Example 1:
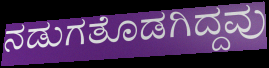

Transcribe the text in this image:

ನಡುಗತೊಡಗಿದ್ದವು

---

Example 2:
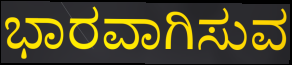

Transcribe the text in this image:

ಭಾರವಾಗಿಸುವ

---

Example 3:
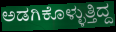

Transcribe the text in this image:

ಅಡಗಿಕೊಳ್ಳುತ್ತಿದ್ದ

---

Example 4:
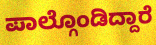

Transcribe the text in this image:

ಪಾಲ್ಗೊಂಡಿದ್ದಾರೆ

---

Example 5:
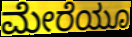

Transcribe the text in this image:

ಮೇರೆಯೂ